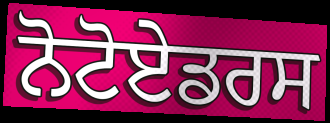
ਨੋਟੋਏਡਰਸ